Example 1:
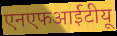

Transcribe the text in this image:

एनएफआईटीयू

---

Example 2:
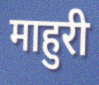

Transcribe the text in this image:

माहुरी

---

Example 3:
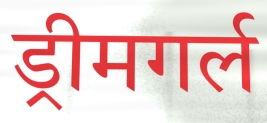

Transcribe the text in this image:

ड्रीमगर्ल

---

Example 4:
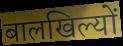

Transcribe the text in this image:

बालखिल्यों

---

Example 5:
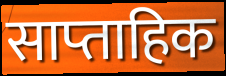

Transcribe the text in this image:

साप्‍ताहिक